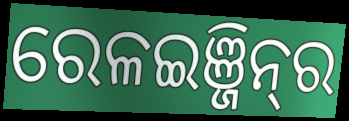
ରେଳଇଞ୍ଜିନ୍‌ର